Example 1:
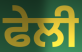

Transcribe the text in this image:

ਫੇਲੀ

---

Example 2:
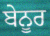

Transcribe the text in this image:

ਬੇਨੂਰ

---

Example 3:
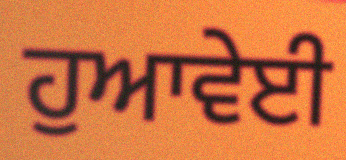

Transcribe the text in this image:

ਹੁਆਵੇਈ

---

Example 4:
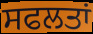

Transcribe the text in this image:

ਸਫਲਤਾਂ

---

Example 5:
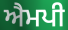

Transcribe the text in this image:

ਐਮਪੀ